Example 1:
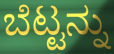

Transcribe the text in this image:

ಬೆಟ್ಟನ್ನು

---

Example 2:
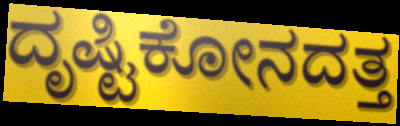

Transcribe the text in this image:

ದೃಷ್ಟಿಕೋನದತ್ತ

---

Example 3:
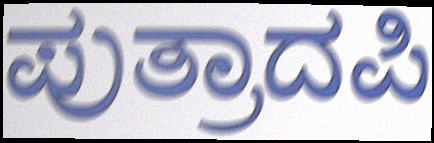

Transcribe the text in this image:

ಪುತ್ರಾದಪಿ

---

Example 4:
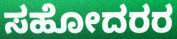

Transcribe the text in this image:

ಸಹೋದರರ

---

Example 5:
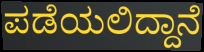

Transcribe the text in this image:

ಪಡೆಯಲಿದ್ದಾನೆ